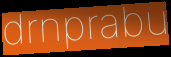
drnprabu